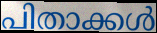
പിതാക്കൾ